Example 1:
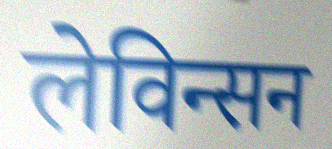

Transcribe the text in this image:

लेविन्सन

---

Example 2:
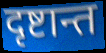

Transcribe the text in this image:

दृष्टान्त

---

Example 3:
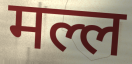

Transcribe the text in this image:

मल्ल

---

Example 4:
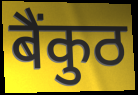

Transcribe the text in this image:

बैंकुठ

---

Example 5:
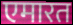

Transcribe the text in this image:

एमारत